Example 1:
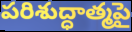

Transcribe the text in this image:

పరిశుద్ధాత్మపై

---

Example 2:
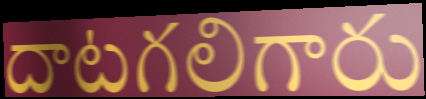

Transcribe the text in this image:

దాటగలిగారు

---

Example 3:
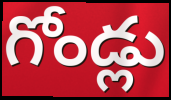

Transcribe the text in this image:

గోండ్లు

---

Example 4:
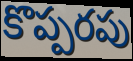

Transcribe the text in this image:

కొప్పరపు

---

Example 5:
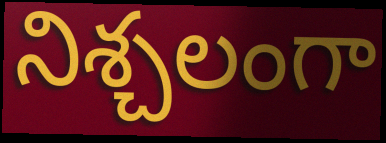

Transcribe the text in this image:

నిశ్చలంగా